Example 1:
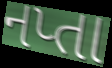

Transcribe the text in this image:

નપ્તા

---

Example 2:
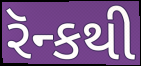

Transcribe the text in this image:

રૅન્કથી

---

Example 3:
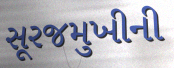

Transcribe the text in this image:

સૂરજમુખીની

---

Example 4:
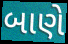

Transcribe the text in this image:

બાણે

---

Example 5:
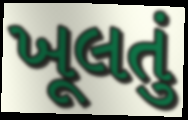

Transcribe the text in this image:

ખૂલતું